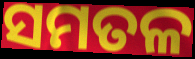
ସମତଳ